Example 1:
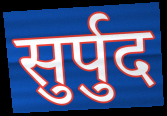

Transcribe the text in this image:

सुर्पुद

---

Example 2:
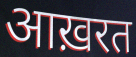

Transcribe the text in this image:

आख़रत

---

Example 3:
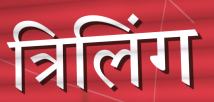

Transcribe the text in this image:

त्रिलिंग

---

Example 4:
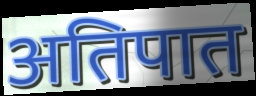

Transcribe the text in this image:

अतिपात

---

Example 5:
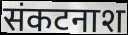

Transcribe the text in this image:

संकटनाश